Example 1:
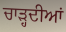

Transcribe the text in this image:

ਚਾੜ੍ਹਦੀਆਂ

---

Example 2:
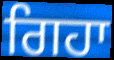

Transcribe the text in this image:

ਗਿਹਾ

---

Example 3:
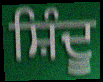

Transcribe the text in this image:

ਸ਼ਿੰਦੂ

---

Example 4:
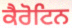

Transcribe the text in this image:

ਕੈਰੋਟਿਨ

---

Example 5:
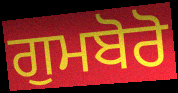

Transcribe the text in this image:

ਗੁਮਬੋਰੋ